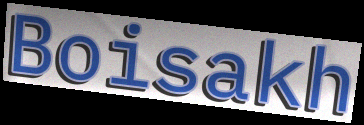
Boisakh